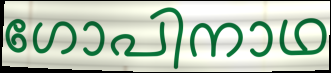
ഗോപിനാഥ